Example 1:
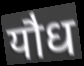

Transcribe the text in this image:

यौध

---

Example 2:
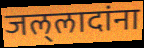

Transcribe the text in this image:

जल्लादांना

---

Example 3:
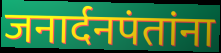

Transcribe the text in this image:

जनार्दनपंतांना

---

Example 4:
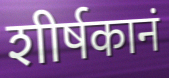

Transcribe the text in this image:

शीर्षकानं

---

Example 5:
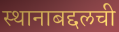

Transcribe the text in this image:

स्थानाबद्दलची